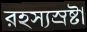
রহস্যস্রষ্টা